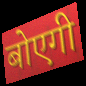
बोएगी